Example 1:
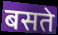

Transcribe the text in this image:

बसते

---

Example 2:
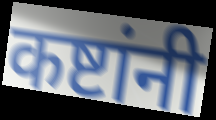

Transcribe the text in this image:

कष्टांनी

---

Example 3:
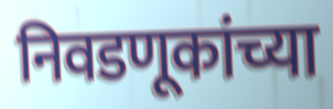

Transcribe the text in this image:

निवडणूकांच्या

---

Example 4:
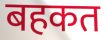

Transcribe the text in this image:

बहकत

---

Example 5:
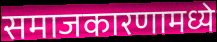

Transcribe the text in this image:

समाजकारणामध्ये